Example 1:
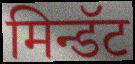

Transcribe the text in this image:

मिन्डॅट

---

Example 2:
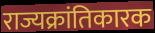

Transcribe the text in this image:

राज्यक्रांतिकारक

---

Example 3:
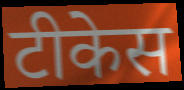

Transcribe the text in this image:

टीकेस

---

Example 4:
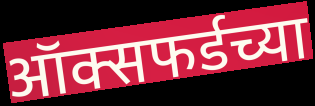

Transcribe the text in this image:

ऑक्सफर्डच्या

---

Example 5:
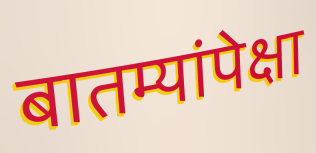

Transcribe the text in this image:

बातम्यांपेक्षा